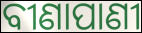
ବୀଣାପାଣୀ